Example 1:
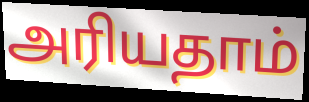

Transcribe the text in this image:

அரியதாம்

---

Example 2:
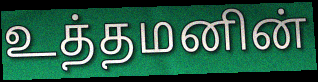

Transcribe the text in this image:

உத்தமனின்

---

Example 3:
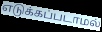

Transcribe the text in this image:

எடுக்கப்படாமல்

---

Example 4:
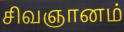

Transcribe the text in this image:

சிவஞானம்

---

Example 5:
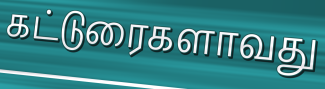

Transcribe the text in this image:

கட்டுரைகளாவது